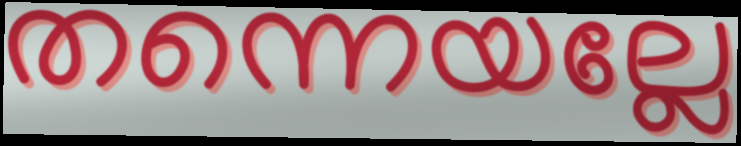
തന്നെയല്ലേ